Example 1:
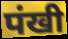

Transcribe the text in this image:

पंखी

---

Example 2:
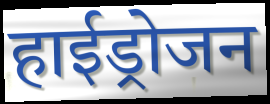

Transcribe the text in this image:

हाईड्रोजन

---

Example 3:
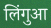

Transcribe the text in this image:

लिंगुआ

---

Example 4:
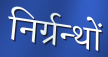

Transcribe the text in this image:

निर्ग्रन्थों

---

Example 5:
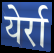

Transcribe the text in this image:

येर्रा